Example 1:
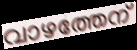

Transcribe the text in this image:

വാഴത്തേന്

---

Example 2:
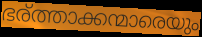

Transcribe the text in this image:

ഭര്ത്താക്കന്മാരെയും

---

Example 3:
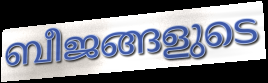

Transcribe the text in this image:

ബീജങ്ങളുടെ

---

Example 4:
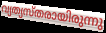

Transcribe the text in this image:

വ്യത്യസ്തരായിരുന്നു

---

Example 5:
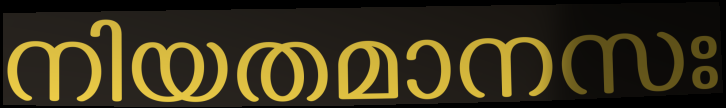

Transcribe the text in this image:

നിയതമാനസഃ